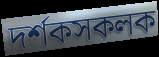
দৰ্শকসকলক